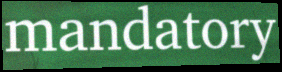
mandatory